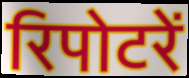
रिपोटरें